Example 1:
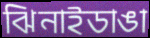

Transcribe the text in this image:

ঝিনাইডাঙা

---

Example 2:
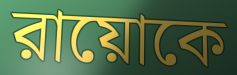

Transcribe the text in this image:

রায়োকে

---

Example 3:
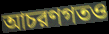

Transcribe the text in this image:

আচরণগতও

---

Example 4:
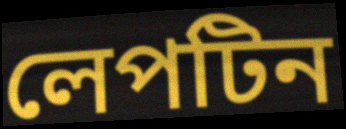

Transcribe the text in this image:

লেপটিন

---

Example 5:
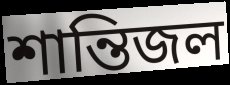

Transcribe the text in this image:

শান্তিজল